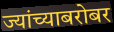
ज्यांच्याबरोबर